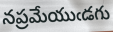
నప్రమేయుఁడగు